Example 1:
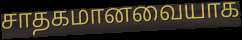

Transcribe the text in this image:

சாதகமானவையாக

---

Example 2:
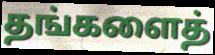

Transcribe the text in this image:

தங்களைத்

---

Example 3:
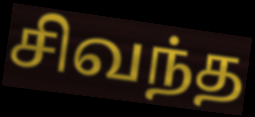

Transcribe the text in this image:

சிவந்த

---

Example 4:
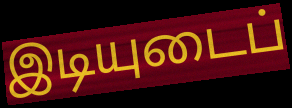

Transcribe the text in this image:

இடியுடைப்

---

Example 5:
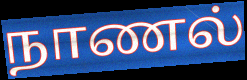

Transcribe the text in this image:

நாணல்